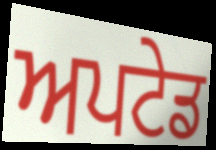
ਅਪਟੇਡ